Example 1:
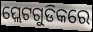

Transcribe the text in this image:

ପ୍ଲେଟଗୁଡିକରେ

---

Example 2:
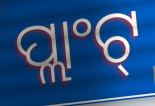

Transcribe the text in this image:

ପ୍ଲାଂଟ୍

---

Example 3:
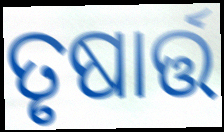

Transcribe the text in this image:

ତୃଷାର୍ତ୍ତ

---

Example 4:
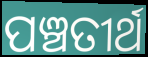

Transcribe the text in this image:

ପଞ୍ଚତୀର୍ଥ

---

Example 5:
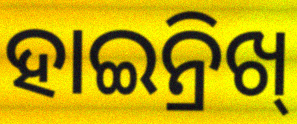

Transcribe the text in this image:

ହାଇନ୍ରିଖ୍